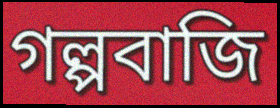
গল্পবাজি